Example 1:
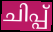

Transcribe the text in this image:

ചിപ്പ്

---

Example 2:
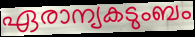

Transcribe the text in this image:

ഏരാന്യകടുംബം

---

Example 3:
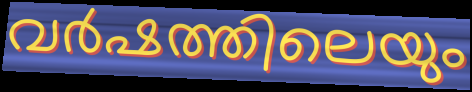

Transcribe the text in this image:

വർഷത്തിലെയും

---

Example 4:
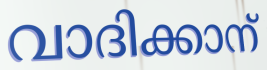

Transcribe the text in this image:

വാദിക്കാന്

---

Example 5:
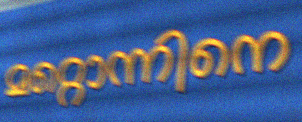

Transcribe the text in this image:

മറ്റൊന്നിനെ